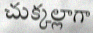
చుక్కల్లాగా